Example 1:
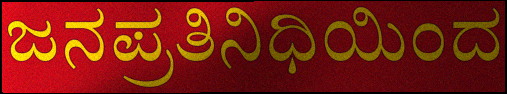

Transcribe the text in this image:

ಜನಪ್ರತಿನಿಧಿಯಿಂದ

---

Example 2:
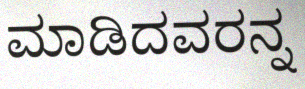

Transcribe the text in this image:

ಮಾಡಿದವರನ್ನ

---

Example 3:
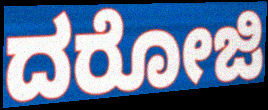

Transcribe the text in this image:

ದರೋಜಿ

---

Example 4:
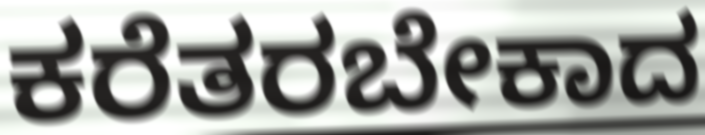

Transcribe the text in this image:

ಕರೆತರಬೇಕಾದ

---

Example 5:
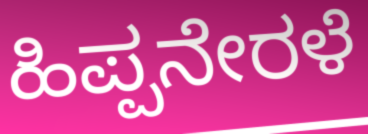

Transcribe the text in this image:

ಹಿಪ್ಪನೇರಳೆ